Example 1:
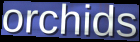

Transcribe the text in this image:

orchids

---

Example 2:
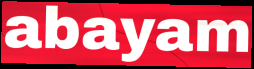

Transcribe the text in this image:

abayam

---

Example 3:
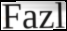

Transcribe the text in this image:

Fazl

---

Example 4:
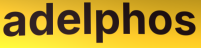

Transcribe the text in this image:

adelphos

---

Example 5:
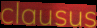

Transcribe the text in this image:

clausus